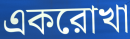
একরোখা